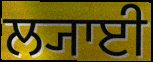
ਲ੍ਯਾਈ